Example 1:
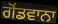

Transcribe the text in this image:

ਗੋਂਡਵਾਨਾ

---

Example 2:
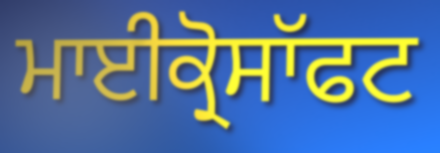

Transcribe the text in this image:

ਮਾਈਕ੍ਰੋਸਾੱਫਟ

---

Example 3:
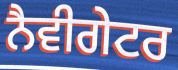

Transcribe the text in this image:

ਨੈਵੀਗੇਟਰ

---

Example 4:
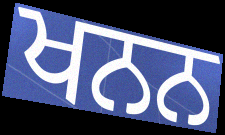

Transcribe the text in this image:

ਖਨਨ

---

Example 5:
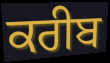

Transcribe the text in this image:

ਕਰੀਬ